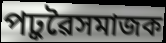
পঢ়ুৱৈসমাজক